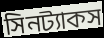
সিনট্যাকস